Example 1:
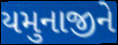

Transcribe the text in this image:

યમુનાજીને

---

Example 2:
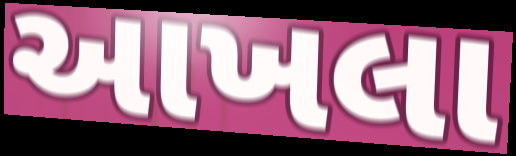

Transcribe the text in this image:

આખલા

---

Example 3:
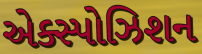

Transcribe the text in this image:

એક્સ્પોઝિશન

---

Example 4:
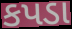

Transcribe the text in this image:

કપડા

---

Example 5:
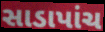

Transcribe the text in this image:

સાડાપાંચ